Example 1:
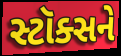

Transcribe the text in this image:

સ્ટૉક્સને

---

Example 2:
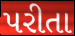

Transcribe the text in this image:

પરીતા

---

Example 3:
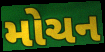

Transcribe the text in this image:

મોચન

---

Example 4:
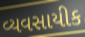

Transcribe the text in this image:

વ્યવસાયીક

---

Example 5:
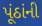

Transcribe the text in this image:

પૂંઠાંની